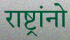
राष्ट्रांनो